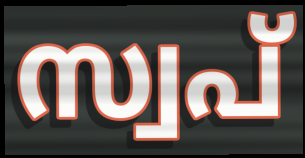
സ്വപ്